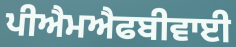
ਪੀਐਮਐਫਬੀਵਾਈ